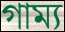
গাম্য